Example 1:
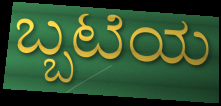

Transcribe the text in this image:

ಬ್ಬಟೆಯ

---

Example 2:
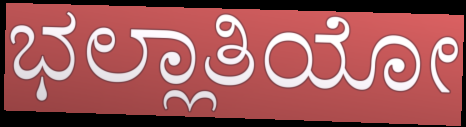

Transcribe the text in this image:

ಭಲ್ಲಾತಿಯೋ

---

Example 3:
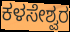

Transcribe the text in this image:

ಕಳಸೇಶ್ವರ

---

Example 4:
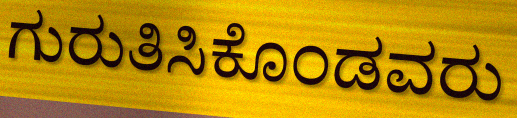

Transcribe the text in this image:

ಗುರುತಿಸಿಕೊಂಡವರು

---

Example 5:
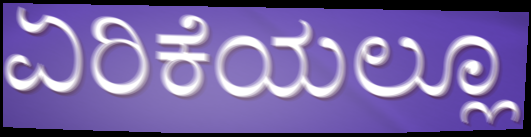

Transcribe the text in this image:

ಏರಿಕೆಯಲ್ಲೂ